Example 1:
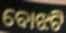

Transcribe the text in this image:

ବୋଝଟି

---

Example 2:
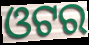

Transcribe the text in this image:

ଓଟର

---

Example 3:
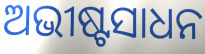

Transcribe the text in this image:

ଅଭୀଷ୍ଟସାଧନ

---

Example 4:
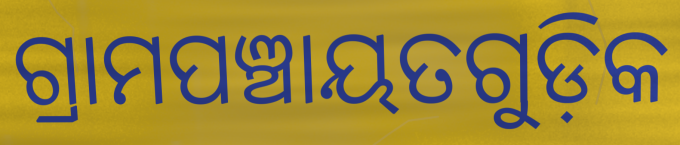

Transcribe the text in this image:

ଗ୍ରାମପଞ୍ଚାୟତଗୁଡ଼ିକ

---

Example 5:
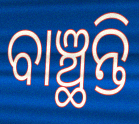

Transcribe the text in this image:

ବାଞ୍ଛନ୍ତି